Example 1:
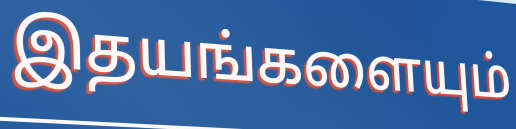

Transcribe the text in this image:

இதயங்களையும்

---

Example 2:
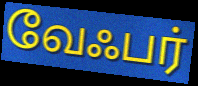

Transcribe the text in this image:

வேஃபர்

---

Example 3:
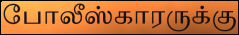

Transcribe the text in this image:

போலீஸ்காரருக்கு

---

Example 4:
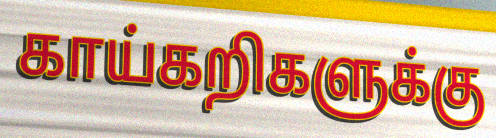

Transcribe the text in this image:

காய்கறிகளுக்கு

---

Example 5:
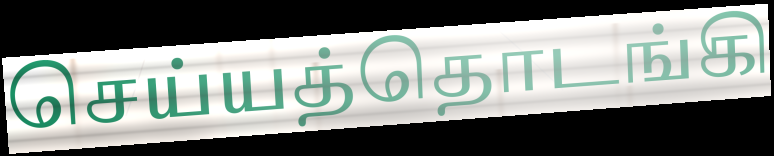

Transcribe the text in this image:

செய்யத்தொடங்கி